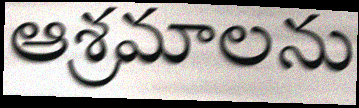
ఆశ్రమాలను